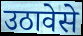
उठावेसे